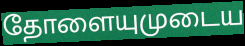
தோளையுமுடைய